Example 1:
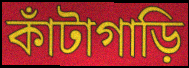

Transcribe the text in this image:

কাঁটাগাড়ি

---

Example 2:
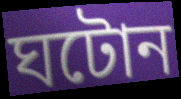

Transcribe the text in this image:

ঘটোন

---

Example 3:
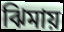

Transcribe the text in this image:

ঝিমায়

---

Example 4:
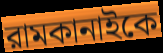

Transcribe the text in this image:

রামকানাইকে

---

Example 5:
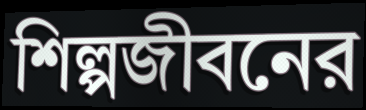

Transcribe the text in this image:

শিল্পজীবনের